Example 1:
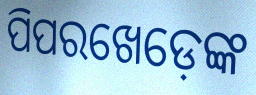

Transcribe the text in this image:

ପିପରଖେଡ଼େଙ୍କ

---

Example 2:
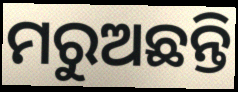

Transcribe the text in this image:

ମରୁଅଛନ୍ତି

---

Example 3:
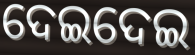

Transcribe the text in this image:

ଦେଇଦେଇ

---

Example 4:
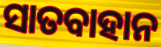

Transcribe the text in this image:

ସାତବାହାନ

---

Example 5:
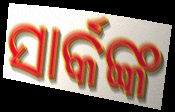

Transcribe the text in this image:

ସାର୍କଙ୍କ